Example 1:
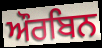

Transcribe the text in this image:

ਔਰਬਿਨ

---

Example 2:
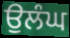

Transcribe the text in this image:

ਉਲੰਘ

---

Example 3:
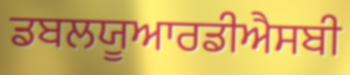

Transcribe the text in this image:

ਡਬਲਯੂਆਰਡੀਐਸਬੀ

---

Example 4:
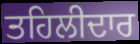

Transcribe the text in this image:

ਤਹਿਲੀਦਾਰ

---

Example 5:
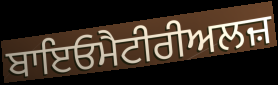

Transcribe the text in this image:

ਬਾਇਓਮੈਟੀਰੀਅਲਜ਼